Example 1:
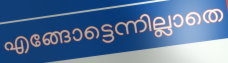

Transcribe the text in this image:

എങ്ങോട്ടെന്നില്ലാതെ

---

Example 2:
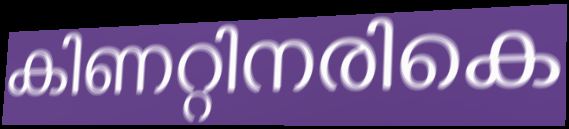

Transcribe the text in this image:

കിണറ്റിനരികെ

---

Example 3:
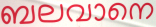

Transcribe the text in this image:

ബലവാനെ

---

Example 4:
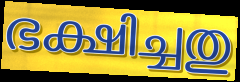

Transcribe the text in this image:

ഭക്ഷിച്ചതു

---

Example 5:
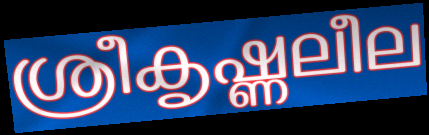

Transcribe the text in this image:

ശ്രീകൃഷ്ണലീല